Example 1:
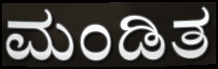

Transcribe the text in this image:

ಮಂಡಿತ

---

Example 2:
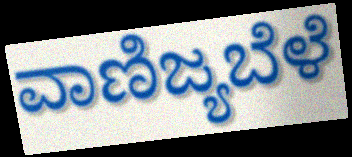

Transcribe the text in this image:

ವಾಣಿಜ್ಯಬೆಳೆ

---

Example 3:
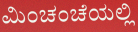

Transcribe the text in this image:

ಮಿಂಚಂಚೆಯಲ್ಲಿ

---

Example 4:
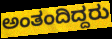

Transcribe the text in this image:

ಅಂತಂದಿದ್ದರು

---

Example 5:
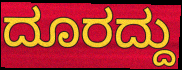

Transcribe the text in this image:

ದೂರದ್ದು